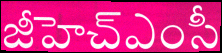
జీహెచ్ఎంసీ